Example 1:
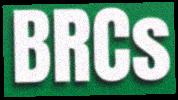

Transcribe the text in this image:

BRCs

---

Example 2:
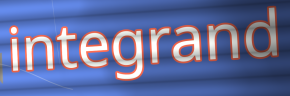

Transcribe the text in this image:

integrand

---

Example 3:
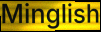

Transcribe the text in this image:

Minglish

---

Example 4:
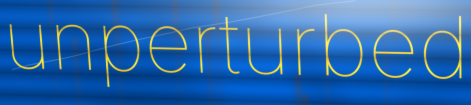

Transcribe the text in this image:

unperturbed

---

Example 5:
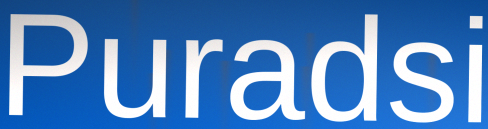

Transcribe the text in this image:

Puradsi